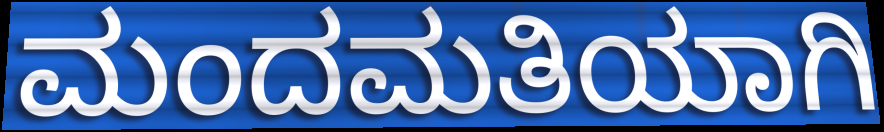
ಮಂದಮತಿಯಾಗಿ